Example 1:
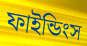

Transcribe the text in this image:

ফাইন্ডিংস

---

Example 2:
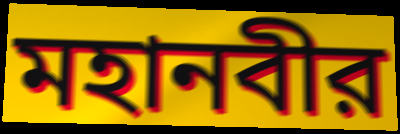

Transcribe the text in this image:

মহানবীর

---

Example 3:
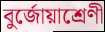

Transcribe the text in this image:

বুর্জোয়াশ্রেণী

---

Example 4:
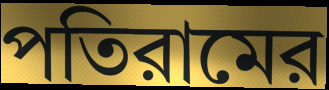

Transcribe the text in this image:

পতিরামের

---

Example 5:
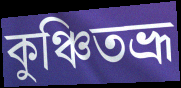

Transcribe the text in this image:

কুঞ্চিতভ্রূ